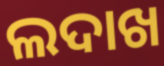
ଲଦାଖ